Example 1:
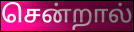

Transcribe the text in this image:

சென்றால்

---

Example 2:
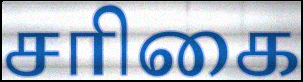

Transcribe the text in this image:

சரிகை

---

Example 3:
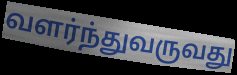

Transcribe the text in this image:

வளர்ந்துவருவது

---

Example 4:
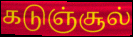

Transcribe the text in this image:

கடுஞ்சூல்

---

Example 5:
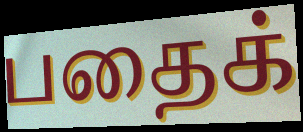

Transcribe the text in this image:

பதைக்